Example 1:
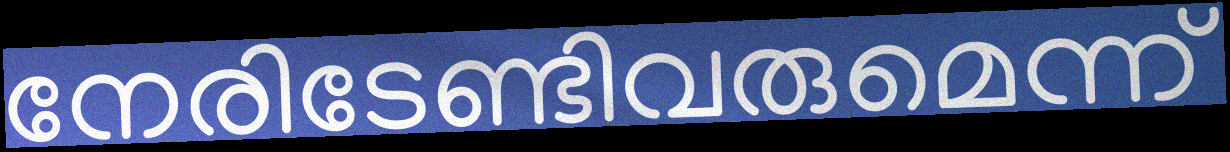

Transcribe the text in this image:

നേരിടേണ്ടിവരുമെന്ന്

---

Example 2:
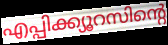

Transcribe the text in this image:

എപ്പിക്ക്യൂറസിന്റെ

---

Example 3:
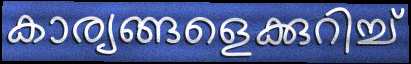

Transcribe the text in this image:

കാര്യങ്ങളെക്കുറിച്ച്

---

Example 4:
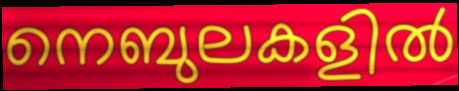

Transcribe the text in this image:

നെബുലകളിൽ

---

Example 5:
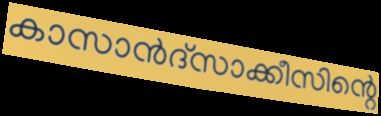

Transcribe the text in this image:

കാസാൻദ്സാക്കീസിന്റെ